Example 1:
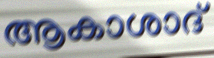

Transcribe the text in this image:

ആകാശാദ്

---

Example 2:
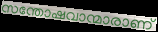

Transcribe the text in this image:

സന്തോഷവാന്മാരാണ്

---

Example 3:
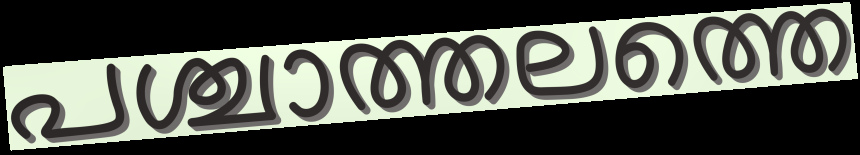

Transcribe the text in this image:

പശ്ചാത്തലത്തെ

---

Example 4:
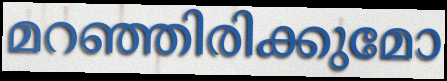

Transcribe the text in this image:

മറഞ്ഞിരിക്കുമോ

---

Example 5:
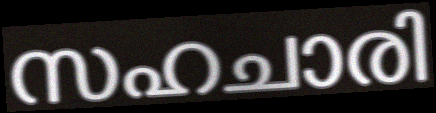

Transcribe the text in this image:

സഹചാരി